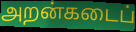
அறன்கடைப்